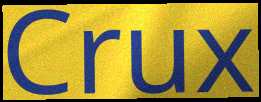
Crux